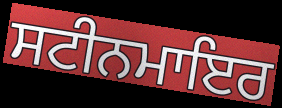
ਸਟੀਨਮਾਇਰ